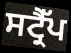
ਸਟ੍ਰੈੱਪ